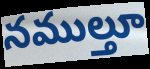
నముల్తూ